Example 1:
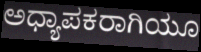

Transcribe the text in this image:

ಅಧ್ಯಾಪಕರಾಗಿಯೂ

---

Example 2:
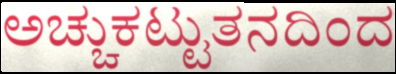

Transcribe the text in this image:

ಅಚ್ಚುಕಟ್ಟುತನದಿಂದ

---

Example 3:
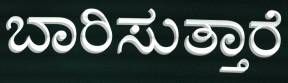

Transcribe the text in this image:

ಬಾರಿಸುತ್ತಾರೆ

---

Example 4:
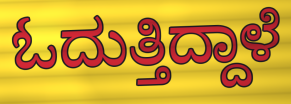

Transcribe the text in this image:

ಓದುತ್ತಿದ್ದಾಳೆ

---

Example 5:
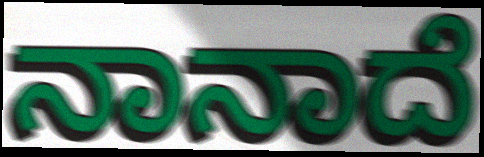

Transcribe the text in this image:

ನಾನಾದೆ